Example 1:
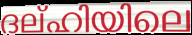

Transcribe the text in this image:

ദല്ഹിയിലെ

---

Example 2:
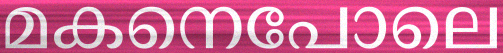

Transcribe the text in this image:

മകനെപോലെ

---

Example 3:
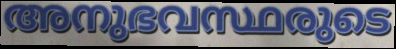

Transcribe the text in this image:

അനുഭവസ്ഥരുടെ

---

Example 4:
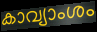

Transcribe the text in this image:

കാവ്യാംശം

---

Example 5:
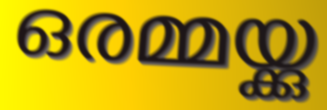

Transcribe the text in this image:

ഒരമ്മയ്ക്കു